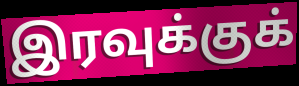
இரவுக்குக்